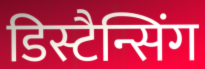
डिस्टैन्सिंग